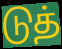
டுத்